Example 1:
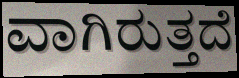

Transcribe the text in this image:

ವಾಗಿರುತ್ತದೆ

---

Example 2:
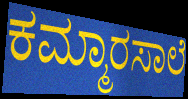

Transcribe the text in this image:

ಕಮ್ಮಾರಸಾಲೆ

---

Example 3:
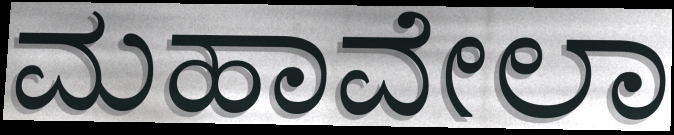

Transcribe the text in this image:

ಮಹಾವೇಲಾ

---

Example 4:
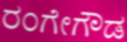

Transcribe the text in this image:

ರಂಗೇಗೌಡ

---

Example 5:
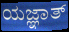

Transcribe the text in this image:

ಯಜ್ಞಾತ್